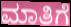
ಮಾತಿಗೆ